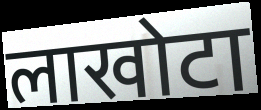
लाखोटा